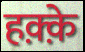
हक़्क़े